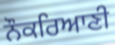
ਨੌਕਰਿਆਣੀ